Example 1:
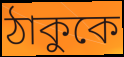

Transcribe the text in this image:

ঠাকুকে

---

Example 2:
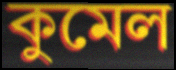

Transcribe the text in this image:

কুমেল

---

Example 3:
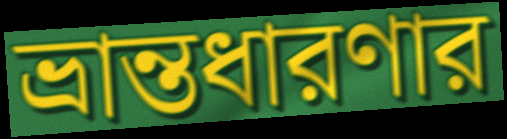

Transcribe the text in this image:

ভ্রান্তধারণার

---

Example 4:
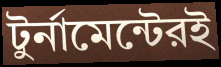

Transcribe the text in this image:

টুর্নামেন্টেরই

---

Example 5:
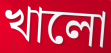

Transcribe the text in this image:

খালো